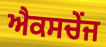
ਐਕਸਚੇਂਜ